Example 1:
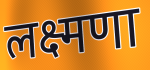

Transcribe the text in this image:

लक्ष्मणा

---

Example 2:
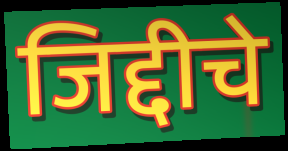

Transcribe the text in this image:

जिद्दीचे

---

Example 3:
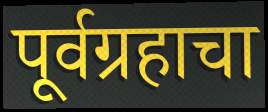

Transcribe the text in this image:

पूर्वग्रहाचा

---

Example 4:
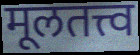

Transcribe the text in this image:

मूलतत्त्व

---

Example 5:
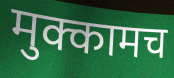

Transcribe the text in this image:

मुक्कामच